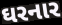
ઘરનાર